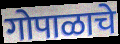
गोपाळाचे